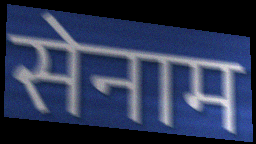
सेनाम